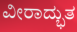
ವೀರಾದ್ಭುತ